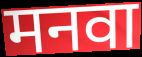
मनवा